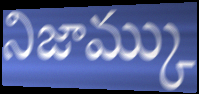
నిజామ్కు